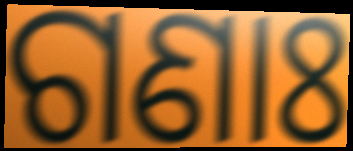
ଗଣାଃ